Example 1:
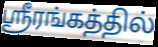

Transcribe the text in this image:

ஸ்ரீரங்கத்தில்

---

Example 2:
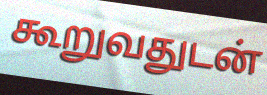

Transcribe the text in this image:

கூறுவதுடன்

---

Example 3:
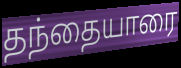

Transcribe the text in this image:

தந்தையாரை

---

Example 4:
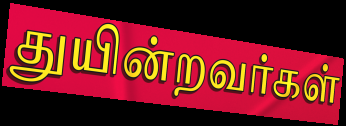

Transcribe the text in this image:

துயின்றவர்கள்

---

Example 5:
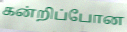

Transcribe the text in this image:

கன்றிப்போன